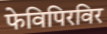
फेविपिरविर